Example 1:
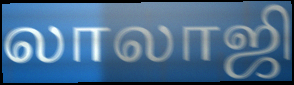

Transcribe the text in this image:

லாலாஜி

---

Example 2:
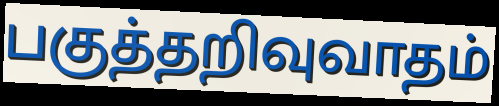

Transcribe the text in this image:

பகுத்தறிவுவாதம்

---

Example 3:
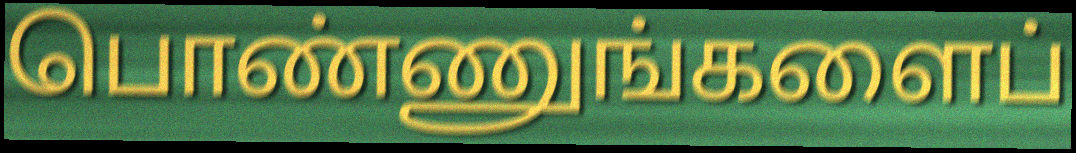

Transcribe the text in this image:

பொண்ணுங்களைப்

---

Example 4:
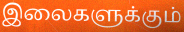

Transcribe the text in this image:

இலைகளுக்கும்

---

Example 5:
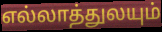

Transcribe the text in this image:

எல்லாத்துலயும்